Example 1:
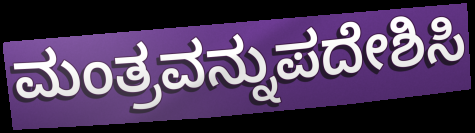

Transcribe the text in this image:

ಮಂತ್ರವನ್ನುಪದೇಶಿಸಿ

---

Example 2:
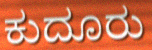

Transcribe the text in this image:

ಕುದೂರು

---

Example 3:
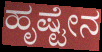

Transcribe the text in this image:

ಹೃಷ್ಟೇನ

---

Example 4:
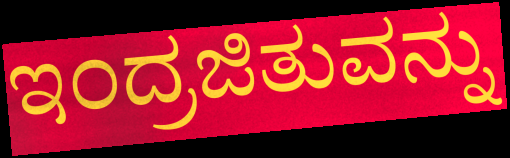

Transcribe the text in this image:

ಇಂದ್ರಜಿತುವನ್ನು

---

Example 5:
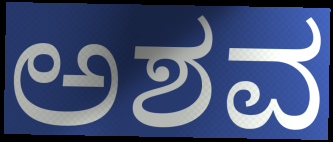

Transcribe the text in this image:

ಅಶವ